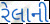
રેલાની